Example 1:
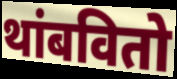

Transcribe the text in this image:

थांबवितो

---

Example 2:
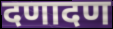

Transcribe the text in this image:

दणादण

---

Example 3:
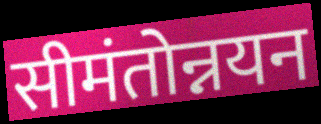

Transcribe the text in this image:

सीमंतोन्नयन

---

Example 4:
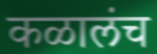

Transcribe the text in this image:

कळालंच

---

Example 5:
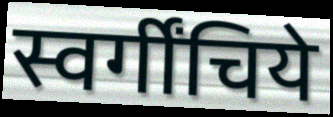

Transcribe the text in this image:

स्वर्गींचिये